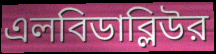
এলবিডাব্লিউর